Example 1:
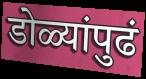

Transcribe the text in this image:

डोळ्यांपुढं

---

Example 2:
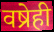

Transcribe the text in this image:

वष्रेही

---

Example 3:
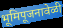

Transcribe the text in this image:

भूमिपूजनावेळी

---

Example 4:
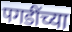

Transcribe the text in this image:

पगडींच्या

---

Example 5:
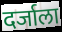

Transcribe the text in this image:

दर्जाला